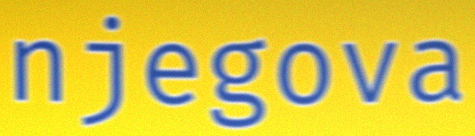
njegova